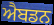
ਐਬਡਨ